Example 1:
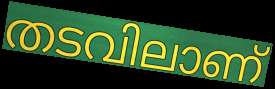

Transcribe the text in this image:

തടവിലാണ്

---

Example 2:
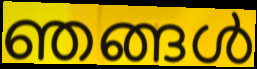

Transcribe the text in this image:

ഞങ്ങൾ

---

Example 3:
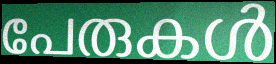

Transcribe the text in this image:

പേരുകൾ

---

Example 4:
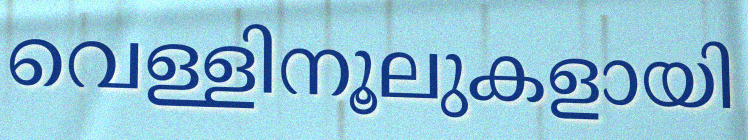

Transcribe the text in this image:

വെള്ളിനൂലുകളായി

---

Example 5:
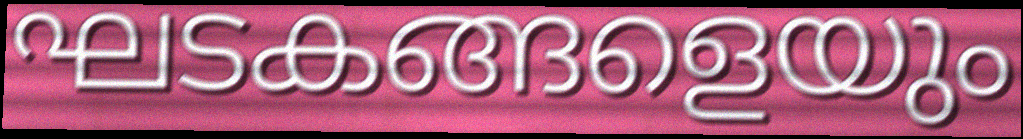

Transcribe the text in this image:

ഘടകങ്ങളെയും